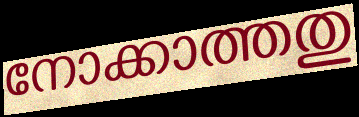
നോക്കാത്തതു